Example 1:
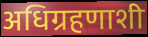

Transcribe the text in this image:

अधिग्रहणाशी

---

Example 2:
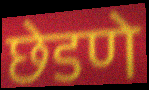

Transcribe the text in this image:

छेडणे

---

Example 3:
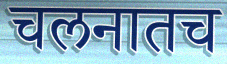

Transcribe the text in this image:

चलनातच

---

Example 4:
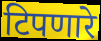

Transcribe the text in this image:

टिपणारे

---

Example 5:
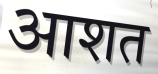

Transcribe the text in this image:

आशत